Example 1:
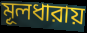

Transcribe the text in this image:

মূলধারায়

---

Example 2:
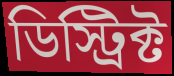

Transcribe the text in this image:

ডিস্ট্রিক্ট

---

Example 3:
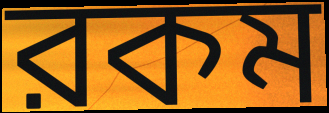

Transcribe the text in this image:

রকম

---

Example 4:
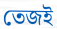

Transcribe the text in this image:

তেজই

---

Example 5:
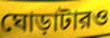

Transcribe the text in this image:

ঘোড়াটারও